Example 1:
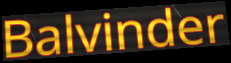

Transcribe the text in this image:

Balvinder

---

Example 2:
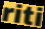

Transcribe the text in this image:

riti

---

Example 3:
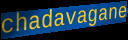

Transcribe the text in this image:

chadavagane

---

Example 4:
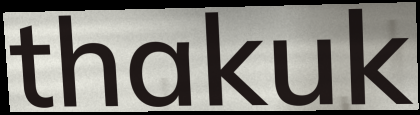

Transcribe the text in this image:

thakuk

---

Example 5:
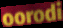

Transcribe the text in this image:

oorodi